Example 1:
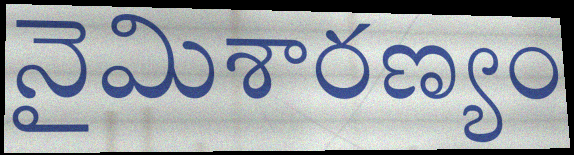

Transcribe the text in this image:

నైమిశారణ్యం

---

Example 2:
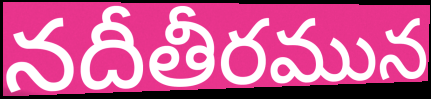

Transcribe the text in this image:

నదీతీరమున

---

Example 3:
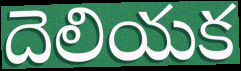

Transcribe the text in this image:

దెలియక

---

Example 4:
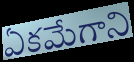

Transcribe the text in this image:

ఏకమేగాని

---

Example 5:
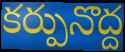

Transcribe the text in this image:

కర్పునొద్ద